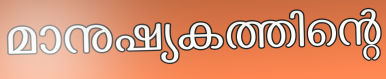
മാനുഷ്യകത്തിന്റെ